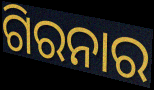
ଗିରନାର